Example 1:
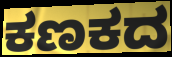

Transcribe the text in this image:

ಕಣಕದ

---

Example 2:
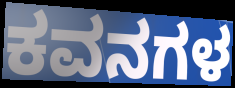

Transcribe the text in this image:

ಕವನಗಳ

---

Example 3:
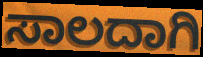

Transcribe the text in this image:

ಸಾಲದಾಗಿ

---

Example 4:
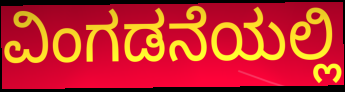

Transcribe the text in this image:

ವಿಂಗಡನೆಯಲ್ಲಿ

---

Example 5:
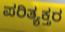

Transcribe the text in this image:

ಪರಿತ್ಯಕ್ತರ